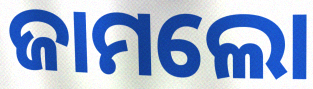
ଜାମଲୋ